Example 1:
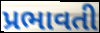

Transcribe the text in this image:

પ્રભાવતી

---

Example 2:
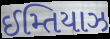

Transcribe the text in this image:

ઈમ્તિયાઝ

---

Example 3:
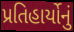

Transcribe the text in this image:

પ્રતિહાર્યોનું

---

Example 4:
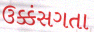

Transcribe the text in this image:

ઉક્કંસગતા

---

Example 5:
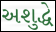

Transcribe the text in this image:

અશુદ્ધે